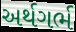
અર્થગર્ભ